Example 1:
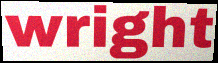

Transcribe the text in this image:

wright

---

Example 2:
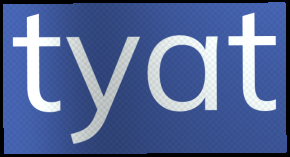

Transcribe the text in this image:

tyat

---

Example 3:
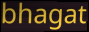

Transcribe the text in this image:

bhagat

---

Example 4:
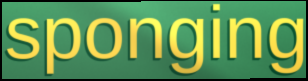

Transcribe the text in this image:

sponging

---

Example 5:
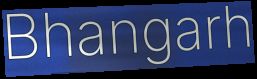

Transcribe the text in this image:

Bhangarh